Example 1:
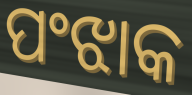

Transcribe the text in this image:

ପଂଝାକ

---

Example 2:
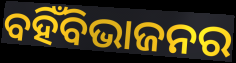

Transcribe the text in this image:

ବହିଁବିଭାଜନର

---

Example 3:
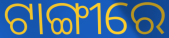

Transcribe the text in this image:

ଟାଙ୍ଗୀରେ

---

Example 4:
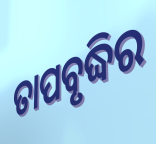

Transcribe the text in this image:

ତାପବୃଦ୍ଧିର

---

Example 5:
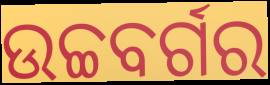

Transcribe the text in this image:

ଉଚ୍ଚବର୍ଗର